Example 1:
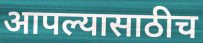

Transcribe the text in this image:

आपल्यासाठीच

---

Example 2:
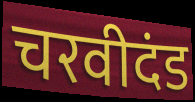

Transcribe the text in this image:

चरवीदंड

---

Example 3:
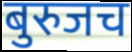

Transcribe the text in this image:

बुरुजच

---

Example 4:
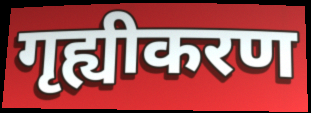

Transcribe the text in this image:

गृह्यीकरण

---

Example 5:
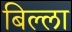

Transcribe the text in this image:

बिल्ला